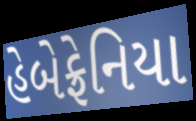
હેબેફ્રેનિયા